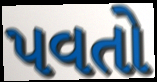
પવતો